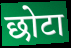
छोटा